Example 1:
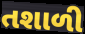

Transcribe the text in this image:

તશાળી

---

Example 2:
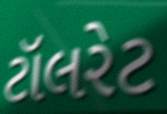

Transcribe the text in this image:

ટૉલરેટ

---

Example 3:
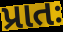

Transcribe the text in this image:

પ્રાતઃ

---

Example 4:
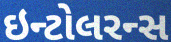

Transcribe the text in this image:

ઇન્ટોલરન્સ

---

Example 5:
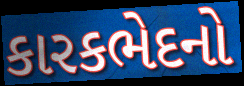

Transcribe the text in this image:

કારકભેદનો